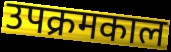
उपक्रमकाल